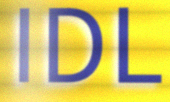
IDL